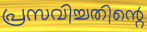
പ്രസവിച്ചതിന്റെ